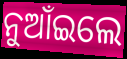
ନୁଆଁଇଲେ